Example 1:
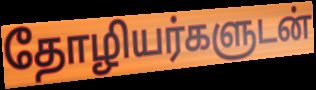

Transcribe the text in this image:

தோழியர்களுடன்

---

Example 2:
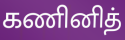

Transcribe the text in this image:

கணினித்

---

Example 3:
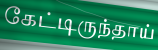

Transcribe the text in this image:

கேட்டிருந்தாய்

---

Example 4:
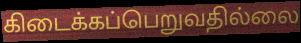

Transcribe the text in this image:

கிடைக்கப்பெறுவதில்லை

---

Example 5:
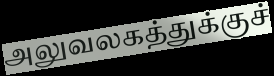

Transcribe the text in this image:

அலுவலகத்துக்குச்